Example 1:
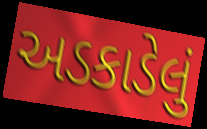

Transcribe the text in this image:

અડકાડેલું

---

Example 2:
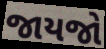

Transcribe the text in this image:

જાયજો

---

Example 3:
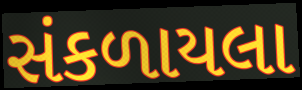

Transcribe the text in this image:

સંકળાયલા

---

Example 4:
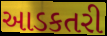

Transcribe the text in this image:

આડકતરી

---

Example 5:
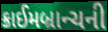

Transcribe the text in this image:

ક્રાઈમબ્રાન્ચની